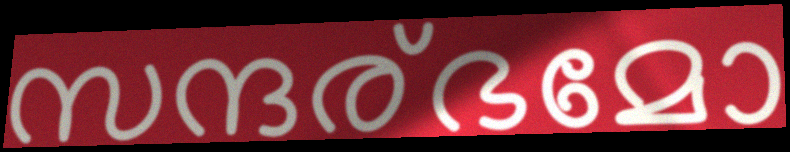
സന്ദര്ഭമോ